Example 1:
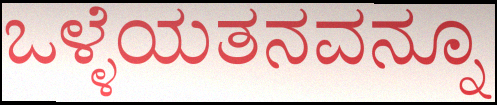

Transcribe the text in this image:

ಒಳ್ಳೆಯತನವನ್ನೂ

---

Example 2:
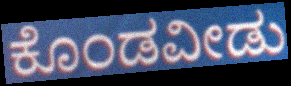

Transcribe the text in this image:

ಕೊಂಡವೀಡು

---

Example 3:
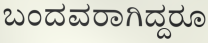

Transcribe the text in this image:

ಬಂದವರಾಗಿದ್ದರೂ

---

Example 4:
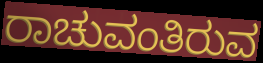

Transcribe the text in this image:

ರಾಚುವಂತಿರುವ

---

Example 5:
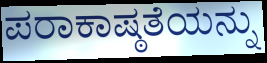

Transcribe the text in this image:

ಪರಾಕಾಷ್ಠತೆಯನ್ನು